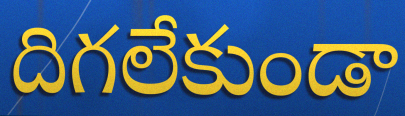
దిగలేకుండా